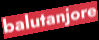
balutanjore